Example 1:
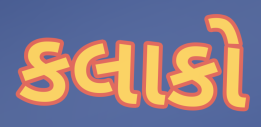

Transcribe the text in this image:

કલાકો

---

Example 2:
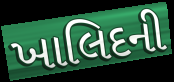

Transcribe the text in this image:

ખાલિદની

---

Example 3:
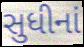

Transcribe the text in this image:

સુધીનાં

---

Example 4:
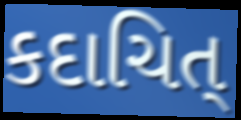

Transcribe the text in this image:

કદાચિત્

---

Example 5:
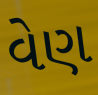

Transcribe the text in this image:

વેણ